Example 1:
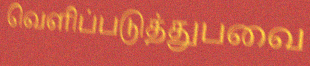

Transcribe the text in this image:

வெளிப்படுத்துபவை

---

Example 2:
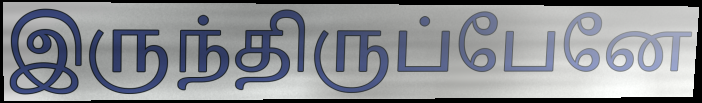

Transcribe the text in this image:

இருந்திருப்பேனே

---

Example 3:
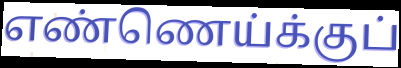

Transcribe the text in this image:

எண்ணெய்க்குப்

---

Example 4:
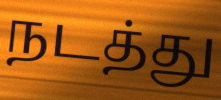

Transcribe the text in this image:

நடத்து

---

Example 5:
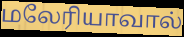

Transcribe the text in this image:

மலேரியாவால்